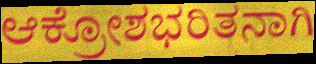
ಆಕ್ರೋಶಭರಿತನಾಗಿ